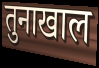
तुनाखाल